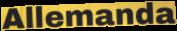
Allemanda